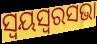
ସ୍ୱୟସ୍ୱରସଭା